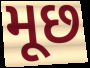
મૂછ